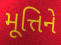
મૂત્તિને